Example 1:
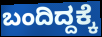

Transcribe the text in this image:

ಬಂದಿದ್ದಕ್ಕೆ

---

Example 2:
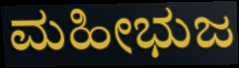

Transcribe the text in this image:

ಮಹೀಭುಜ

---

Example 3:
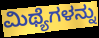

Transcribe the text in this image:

ಮಿಥ್ಯೆಗಳನ್ನು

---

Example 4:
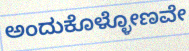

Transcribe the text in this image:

ಅಂದುಕೊಳ್ಳೋಣವೇ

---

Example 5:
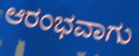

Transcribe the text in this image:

ಆರಂಭವಾಗು